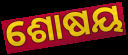
ଶୋଷୟ